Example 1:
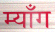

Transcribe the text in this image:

म्याँग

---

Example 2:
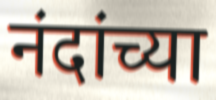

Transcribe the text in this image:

नंदांच्या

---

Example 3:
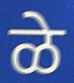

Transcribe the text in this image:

ळे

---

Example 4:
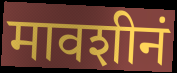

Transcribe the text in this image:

मावशीनं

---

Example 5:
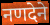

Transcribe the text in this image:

नणदेने